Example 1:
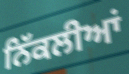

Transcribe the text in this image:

ਨਿੱਕਲੀਆਂ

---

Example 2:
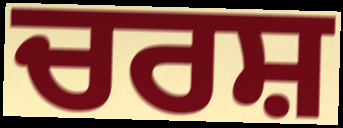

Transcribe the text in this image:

ਚਰਸ਼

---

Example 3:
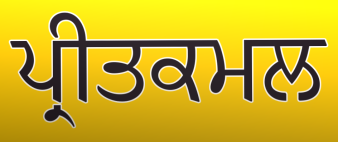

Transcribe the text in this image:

ਪ੍ਰੀਤਕਮਲ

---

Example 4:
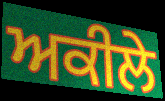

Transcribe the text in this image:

ਅਕੀਲੇ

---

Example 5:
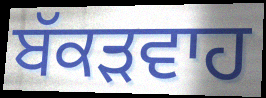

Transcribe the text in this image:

ਬੱਕੜਵਾਹ